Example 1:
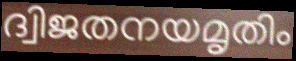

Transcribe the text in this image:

ദ്വിജതനയമൃതിം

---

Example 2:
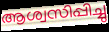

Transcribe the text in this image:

ആശ്വസിപ്പിച്ചു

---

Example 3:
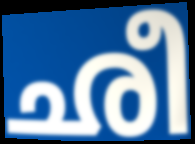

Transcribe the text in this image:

ഛീ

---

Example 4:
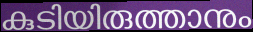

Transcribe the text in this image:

കുടിയിരുത്താനും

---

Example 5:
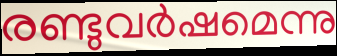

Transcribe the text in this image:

രണ്ടുവർഷമെന്നു